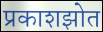
प्रकाशझोत